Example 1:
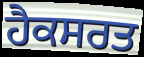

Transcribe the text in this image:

ਹੈਕਸਰਤ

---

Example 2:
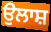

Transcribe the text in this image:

ਉਲਾਸ਼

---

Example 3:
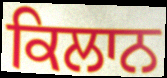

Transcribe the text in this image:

ਕਿਲਾਨ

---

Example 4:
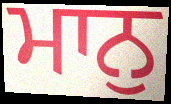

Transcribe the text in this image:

ਮਾਨੁ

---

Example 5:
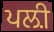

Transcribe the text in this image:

ਪਲ਼ੀ